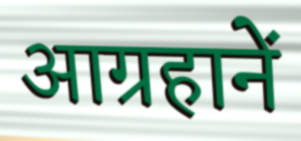
आग्रहानें